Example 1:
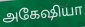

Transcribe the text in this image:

அகேஷியா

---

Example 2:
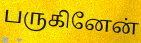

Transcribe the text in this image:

பருகினேன்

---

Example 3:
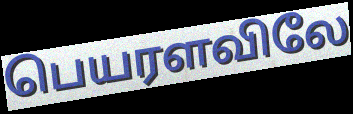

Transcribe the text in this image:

பெயரளவிலே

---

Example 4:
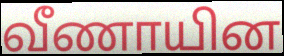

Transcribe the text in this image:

வீணாயின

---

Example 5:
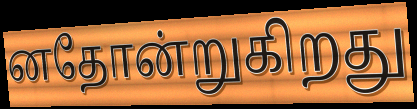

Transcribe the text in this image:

னதோன்றுகிறது